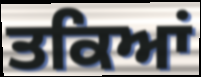
ਤਕਿਆਂ